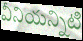
వీనియన్నిటి